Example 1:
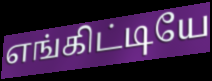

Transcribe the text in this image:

எங்கிட்டியே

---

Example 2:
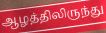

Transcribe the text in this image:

ஆழத்திலிருந்து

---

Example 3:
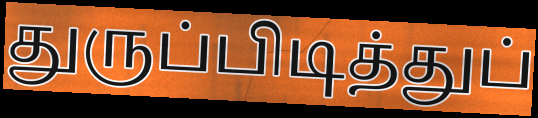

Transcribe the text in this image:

துருப்பிடித்துப்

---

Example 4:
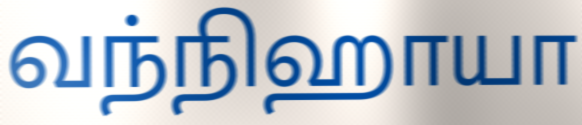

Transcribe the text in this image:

வந்நிஹாயா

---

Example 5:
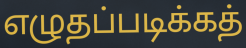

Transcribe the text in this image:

எழுதப்படிக்கத்